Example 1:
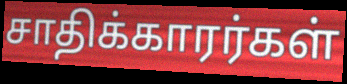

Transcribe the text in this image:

சாதிக்காரர்கள்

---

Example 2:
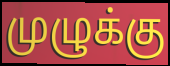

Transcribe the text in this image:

முழுக்கு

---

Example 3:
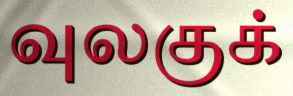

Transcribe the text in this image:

வுலகுக்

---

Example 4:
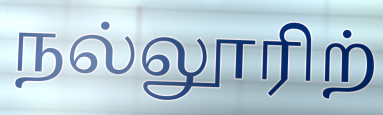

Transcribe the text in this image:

நல்லூரிற்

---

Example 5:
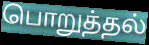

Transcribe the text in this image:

பொறுத்தல்